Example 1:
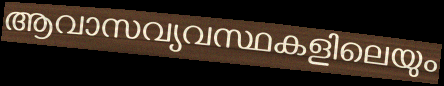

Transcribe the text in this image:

ആവാസവ്യവസ്ഥകളിലെയും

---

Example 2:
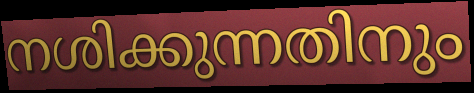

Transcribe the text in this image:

നശിക്കുന്നതിനും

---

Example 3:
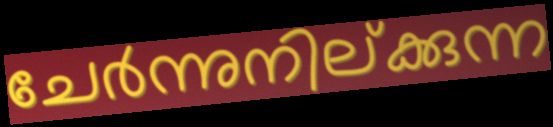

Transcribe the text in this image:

ചേർന്നുനില്ക്കുന്ന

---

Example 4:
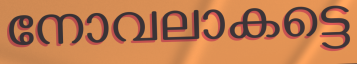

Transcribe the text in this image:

നോവലാകട്ടെ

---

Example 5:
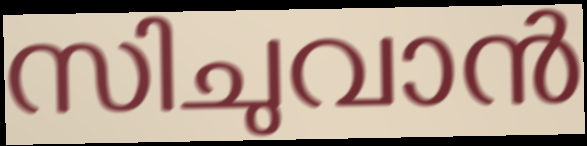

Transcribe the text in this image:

സിചുവാൻ